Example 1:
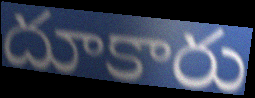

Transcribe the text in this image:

దూకారు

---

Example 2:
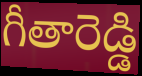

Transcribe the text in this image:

గీతారెడ్డి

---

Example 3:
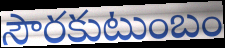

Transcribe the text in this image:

సౌరకుటుంబం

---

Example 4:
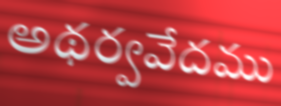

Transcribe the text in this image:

అథర్వవేదము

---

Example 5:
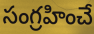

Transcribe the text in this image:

సంగ్రహించే